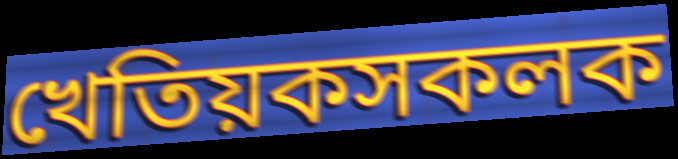
খেতিয়কসকলক